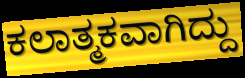
ಕಲಾತ್ಮಕವಾಗಿದ್ದು